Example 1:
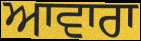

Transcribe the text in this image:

ਆਵਾਰਾ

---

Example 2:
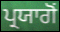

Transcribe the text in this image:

ਪ੍ਰਯਾਗੋਂ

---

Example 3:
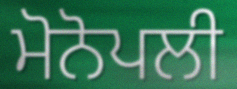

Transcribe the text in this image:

ਮੋਨੋਪਲੀ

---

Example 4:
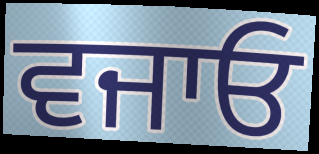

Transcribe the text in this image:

ਵਜਾਓ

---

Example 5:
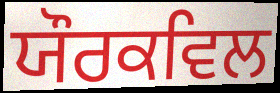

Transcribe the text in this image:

ਯੌਰਕਵਿਲ